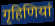
गृहिणियां